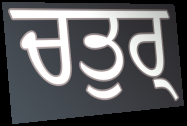
ਚਤੁਰ੍